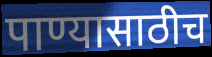
पाण्यासाठीच